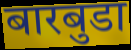
बारबुडा